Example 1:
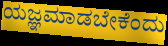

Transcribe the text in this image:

ಯಜ್ಞಮಾಡಬೇಕೆಂದು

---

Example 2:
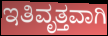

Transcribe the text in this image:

ಇತಿವೃತ್ತವಾಗಿ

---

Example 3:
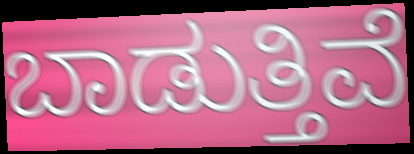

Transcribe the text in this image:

ಬಾಡುತ್ತಿವೆ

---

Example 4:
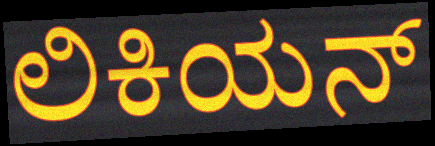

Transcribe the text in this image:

ಲಿಕಿಯನ್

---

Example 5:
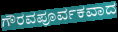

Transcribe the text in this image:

ಗೌರವಪೂರ್ವಕವಾದ